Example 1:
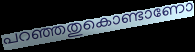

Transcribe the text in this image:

പറഞ്ഞതുകൊണ്ടാണോ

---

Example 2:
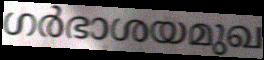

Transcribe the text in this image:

ഗർഭാശയമുഖ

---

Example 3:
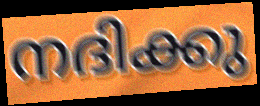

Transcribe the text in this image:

നദിക്കു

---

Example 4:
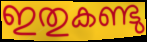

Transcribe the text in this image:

ഇതുകണ്ടു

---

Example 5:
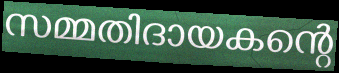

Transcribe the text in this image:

സമ്മതിദായകന്റെ